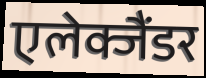
एलेक्जैंडर